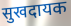
सुखदायक